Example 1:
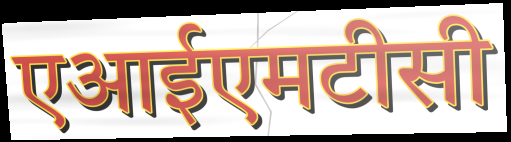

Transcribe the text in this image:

एआईएमटीसी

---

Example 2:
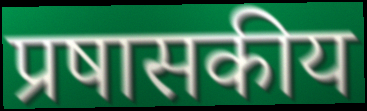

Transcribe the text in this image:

प्रषासकीय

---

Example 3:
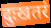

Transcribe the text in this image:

दुःखतरं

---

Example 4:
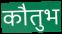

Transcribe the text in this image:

कौतुभ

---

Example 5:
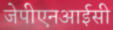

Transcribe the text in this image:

जेपीएनआईसी